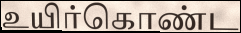
உயிர்கொண்ட